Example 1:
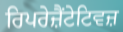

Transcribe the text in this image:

ਰਿਪਰੇਜ਼ੈਂਟੇਟਿਵਜ਼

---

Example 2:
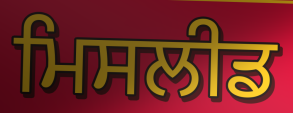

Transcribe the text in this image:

ਮਿਸਲੀਡ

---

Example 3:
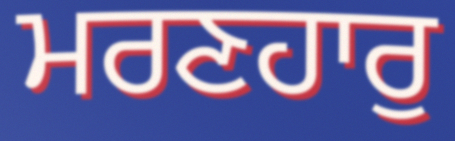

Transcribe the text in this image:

ਮਰਣਹਾਰੁ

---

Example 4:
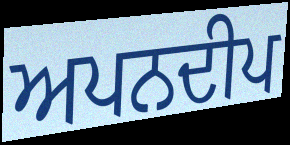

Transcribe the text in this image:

ਅਪਨਦੀਪ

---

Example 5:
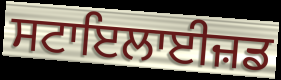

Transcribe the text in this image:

ਸਟਾਇਲਾਈਜ਼ਡ